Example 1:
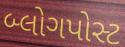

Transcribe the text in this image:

બ્લોગપોસ્ટ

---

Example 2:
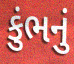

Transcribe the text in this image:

કુંભનું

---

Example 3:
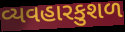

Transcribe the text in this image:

વ્યવહારકુશળ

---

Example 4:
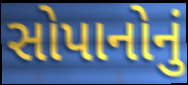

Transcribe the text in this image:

સોપાનોનું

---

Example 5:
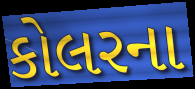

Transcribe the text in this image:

કોલરના